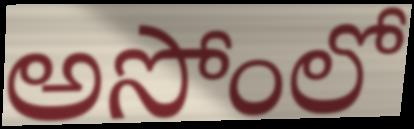
అసోంలో